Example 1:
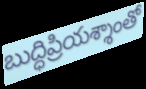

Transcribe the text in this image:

బుద్ధిప్రియశ్శాంతో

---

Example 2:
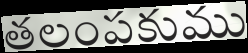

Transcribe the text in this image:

తలంపకుము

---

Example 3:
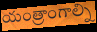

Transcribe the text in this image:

యంత్రాంగాల్ని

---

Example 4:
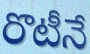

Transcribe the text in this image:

రొటీనే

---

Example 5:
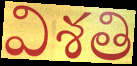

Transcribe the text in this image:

విశతి